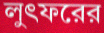
লুৎফরের